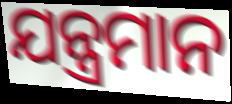
ଯନ୍ତ୍ରମାନ